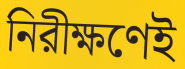
নিরীক্ষণেই